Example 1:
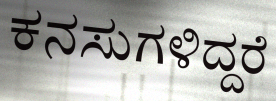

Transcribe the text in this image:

ಕನಸುಗಳಿದ್ದರೆ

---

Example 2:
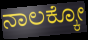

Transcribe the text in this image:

ನಾಲಕ್ಕೋ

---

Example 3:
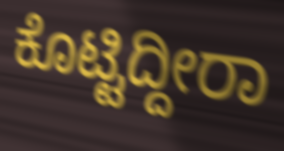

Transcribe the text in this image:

ಕೊಟ್ಟಿದ್ದೀರಾ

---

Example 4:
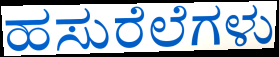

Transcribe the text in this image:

ಹಸುರೆಲೆಗಳು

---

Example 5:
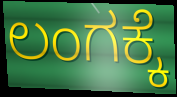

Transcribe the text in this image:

ಲಂಗಕ್ಕೆ